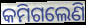
କମିଗଲେଣି